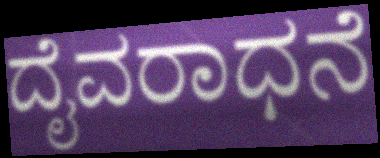
ದೈವರಾಧನೆ